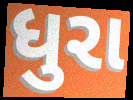
ધુરા